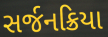
સર્જનક્રિયા